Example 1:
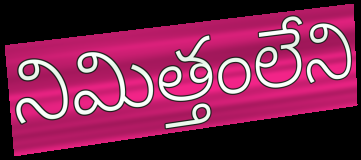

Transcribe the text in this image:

నిమిత్తంలేని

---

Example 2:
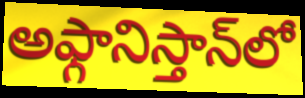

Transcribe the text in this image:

అఫ్గానిస్తాన్‌లో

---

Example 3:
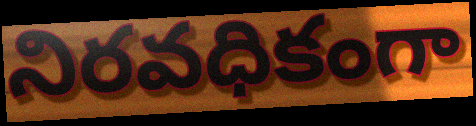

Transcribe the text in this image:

నిరవధికంగా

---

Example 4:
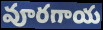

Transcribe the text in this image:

వూరగాయ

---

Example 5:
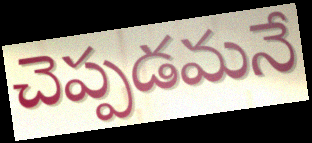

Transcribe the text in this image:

చెప్పడమనే